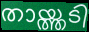
തായ്ത്തടി